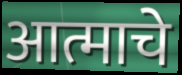
आत्माचे